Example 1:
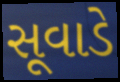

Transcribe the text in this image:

સૂવાડે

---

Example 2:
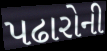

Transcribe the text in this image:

પઢારોની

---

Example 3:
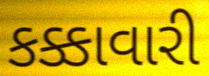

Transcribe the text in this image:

કક્કાવારી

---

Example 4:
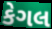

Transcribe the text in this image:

કેગલ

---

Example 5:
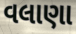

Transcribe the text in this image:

વલાણા